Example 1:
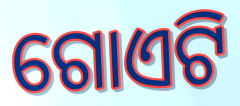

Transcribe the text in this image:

ଗୋଏଟି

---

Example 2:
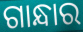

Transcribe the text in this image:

ଗାନ୍ଧାର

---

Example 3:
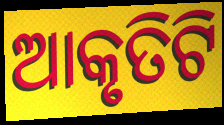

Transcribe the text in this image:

ଆକୃତିଟି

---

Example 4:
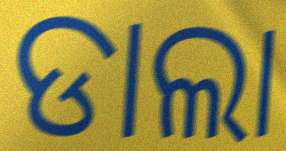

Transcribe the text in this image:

ଡାଲା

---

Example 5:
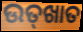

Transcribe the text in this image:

ଉତ୍‌ଖାତ